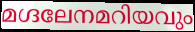
മഗ്ദലേനമറിയവും